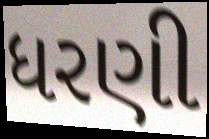
ધરણી